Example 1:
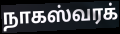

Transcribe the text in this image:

நாகஸ்வரக்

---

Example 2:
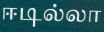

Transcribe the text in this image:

ஈடில்லா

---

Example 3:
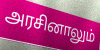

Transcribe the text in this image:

அரசினாலும்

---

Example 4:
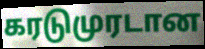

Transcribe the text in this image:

கரடுமுரடான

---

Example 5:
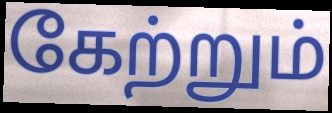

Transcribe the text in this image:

கேற்றும்